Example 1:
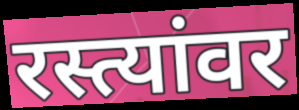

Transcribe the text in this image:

रस्त्यांवर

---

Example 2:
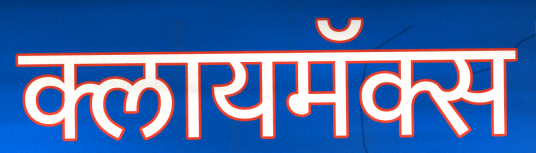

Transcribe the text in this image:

क्लायमॅक्स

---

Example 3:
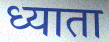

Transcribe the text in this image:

ध्याता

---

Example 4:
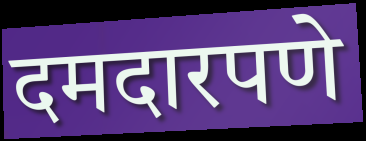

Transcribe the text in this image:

दमदारपणे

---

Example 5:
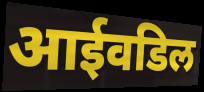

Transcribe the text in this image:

आईवडिल